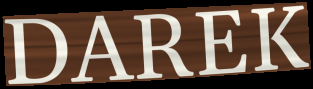
DAREK